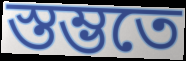
স্তম্ভতে